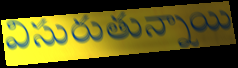
విసురుతున్నాయి